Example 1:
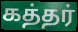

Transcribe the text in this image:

கத்தர்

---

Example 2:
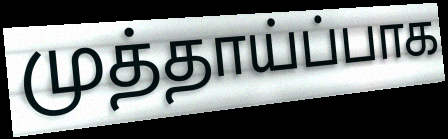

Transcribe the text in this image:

முத்தாய்ப்பாக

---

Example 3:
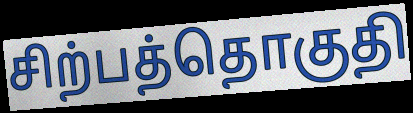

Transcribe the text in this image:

சிற்பத்தொகுதி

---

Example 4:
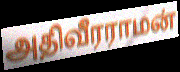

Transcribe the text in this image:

அதிவீரராமன்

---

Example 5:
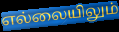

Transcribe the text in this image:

எல்லையிலும்